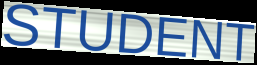
STUDENT